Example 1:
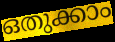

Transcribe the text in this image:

ഒതുക്കാം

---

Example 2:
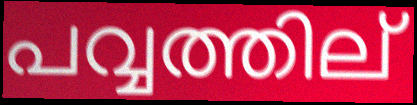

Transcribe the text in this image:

പവ്വത്തില്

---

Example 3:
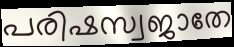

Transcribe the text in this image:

പരിഷസ്വജാതേ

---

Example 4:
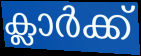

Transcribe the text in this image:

ക്ലാർക്ക്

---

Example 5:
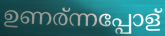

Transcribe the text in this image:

ഉണര്ന്നപ്പോള്